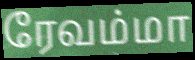
ரேவம்மா